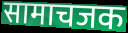
सामाचजक